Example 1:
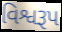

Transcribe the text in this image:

વિશ્વરૂપ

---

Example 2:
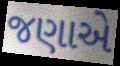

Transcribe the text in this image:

જણાએ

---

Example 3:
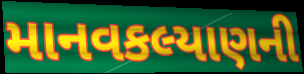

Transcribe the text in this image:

માનવકલ્યાણની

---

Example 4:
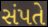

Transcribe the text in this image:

સંપતે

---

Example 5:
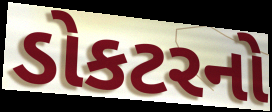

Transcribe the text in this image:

ડોકટરનો